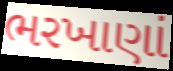
ભરખાણાં